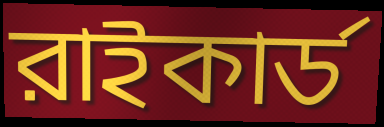
রাইকার্ড